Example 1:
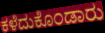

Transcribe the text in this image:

ಕಳೆದುಕೊಂಡಾರು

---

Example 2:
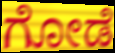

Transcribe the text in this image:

ಗೋಡೆ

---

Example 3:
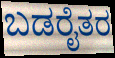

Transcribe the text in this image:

ಬಡರೈತರ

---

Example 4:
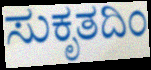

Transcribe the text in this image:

ಸುಕೃತದಿಂ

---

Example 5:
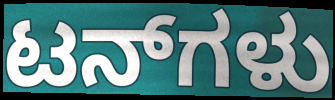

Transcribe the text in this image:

ಟನ್‌ಗಳು